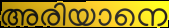
അരിയാനെ